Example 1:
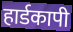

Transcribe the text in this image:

हार्डकापी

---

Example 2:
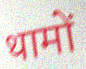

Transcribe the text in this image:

थामों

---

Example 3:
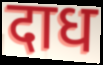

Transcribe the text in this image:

दाध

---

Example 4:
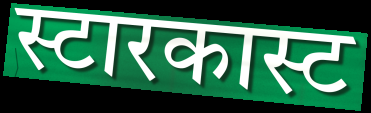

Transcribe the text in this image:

स्टारकास्ट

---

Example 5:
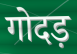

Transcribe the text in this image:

गोदड़